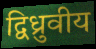
द्विध्रुवीय